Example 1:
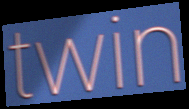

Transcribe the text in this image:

twin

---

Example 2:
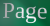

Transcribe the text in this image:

Page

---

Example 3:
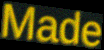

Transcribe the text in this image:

Made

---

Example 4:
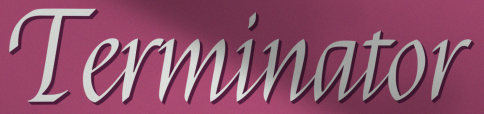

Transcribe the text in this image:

Terminator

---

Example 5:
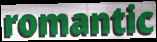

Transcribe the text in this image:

romantic